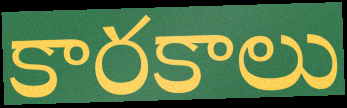
కారకాలు